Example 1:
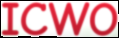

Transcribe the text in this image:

ICWO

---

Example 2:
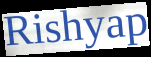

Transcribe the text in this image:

Rishyap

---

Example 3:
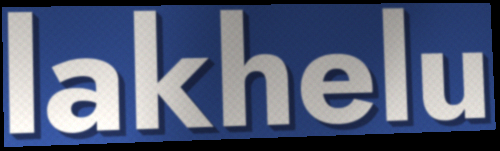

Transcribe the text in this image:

lakhelu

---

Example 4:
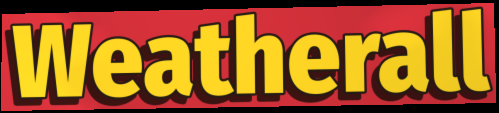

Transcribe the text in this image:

Weatherall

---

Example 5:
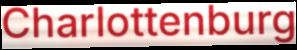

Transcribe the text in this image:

Charlottenburg